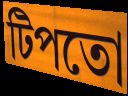
টিপতো